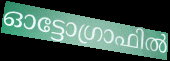
ഓട്ടോഗ്രാഫിൽ